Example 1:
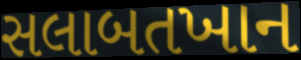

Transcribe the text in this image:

સલાબતખાન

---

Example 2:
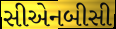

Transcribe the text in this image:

સીએનબીસી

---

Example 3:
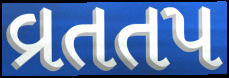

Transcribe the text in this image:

વ્રતતપ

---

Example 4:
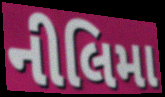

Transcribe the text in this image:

નીલિમા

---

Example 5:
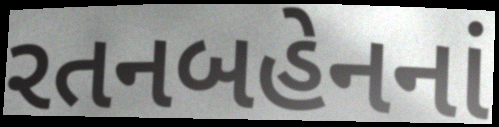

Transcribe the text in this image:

રતનબહેનનાં